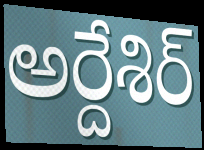
అర్దేశిర్